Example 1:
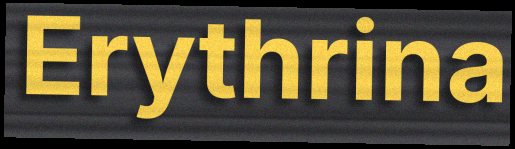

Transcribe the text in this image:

Erythrina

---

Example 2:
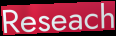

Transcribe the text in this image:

Reseach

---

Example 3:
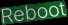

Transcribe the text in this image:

Reboot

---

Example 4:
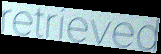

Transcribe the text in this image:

retrieved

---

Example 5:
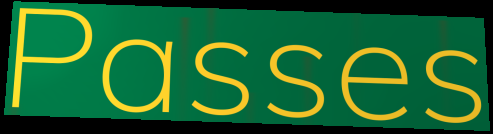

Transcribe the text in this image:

Passes